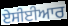
ਏਸੀਈਆਰ